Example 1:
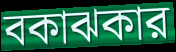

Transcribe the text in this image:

বকাঝকার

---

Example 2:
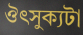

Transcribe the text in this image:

ঔৎসুক্যটা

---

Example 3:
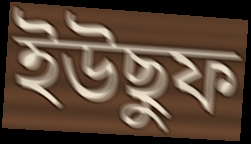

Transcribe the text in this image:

ইউছুফ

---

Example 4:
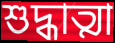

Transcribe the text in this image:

শুদ্ধাত্মা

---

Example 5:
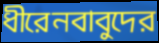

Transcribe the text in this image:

ধীরেনবাবুদের